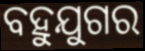
ବହୁଯୁଗର